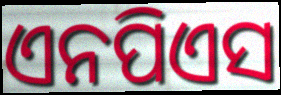
ଏନପିଏସ